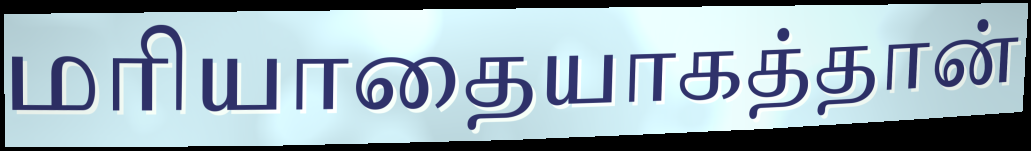
மரியாதையாகத்தான்